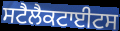
ਸਟੈਲੈਕਟਾਈਟਸ